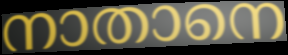
നാതാനെ